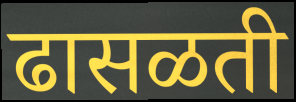
ढासळती